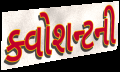
ક્વોશન્ટની